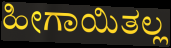
ಹೀಗಾಯಿತಲ್ಲ